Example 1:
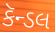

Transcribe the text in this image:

કૅન્ડલ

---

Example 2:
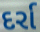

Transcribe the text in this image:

દર્રા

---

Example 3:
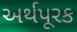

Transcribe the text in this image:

અર્થપૂરક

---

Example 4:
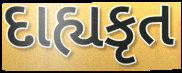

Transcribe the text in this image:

દાહ્યકૃત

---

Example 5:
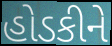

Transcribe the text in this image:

હોડકીને